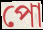
পো